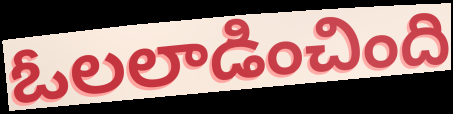
ఓలలాడించింది